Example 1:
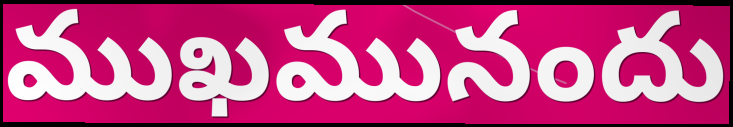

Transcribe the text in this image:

ముఖమునందు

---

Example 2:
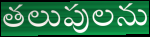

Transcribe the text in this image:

తలుపులను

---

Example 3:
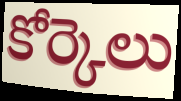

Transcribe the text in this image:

కోర్కెలు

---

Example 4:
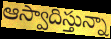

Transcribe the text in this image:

ఆస్వాదిస్తున్నా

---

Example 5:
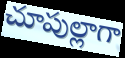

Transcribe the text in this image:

చూపుల్లాగా